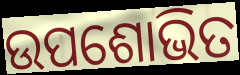
ଉପଶୋଭିତ